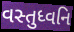
વસ્તુધ્વનિ